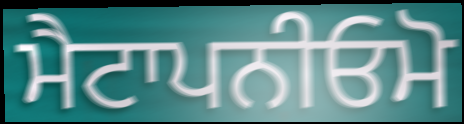
ਮੈਟਾਪਨੀਓਮੋ